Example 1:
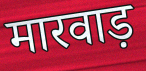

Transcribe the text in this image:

मारवाड़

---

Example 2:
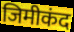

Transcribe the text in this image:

जिमीकंद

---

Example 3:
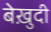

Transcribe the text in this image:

बेख़ुदी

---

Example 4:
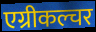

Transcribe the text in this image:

एग्रीकल्चर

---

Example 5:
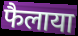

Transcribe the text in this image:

फैलाया